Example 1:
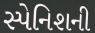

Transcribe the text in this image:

સ્પેનિશની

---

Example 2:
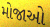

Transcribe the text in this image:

મોજાઓ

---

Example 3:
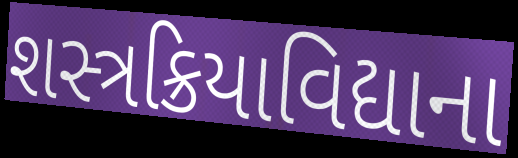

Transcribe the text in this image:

શસ્ત્રક્રિયાવિદ્યાના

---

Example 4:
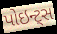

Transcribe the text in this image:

પોઇન્ટ્સ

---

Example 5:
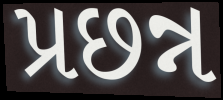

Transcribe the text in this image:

પ્રછન્ન